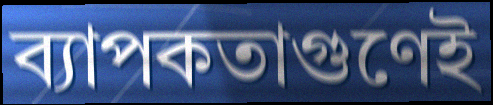
ব্যাপকতাগুণেই